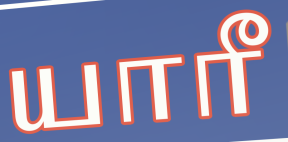
யாரீ